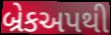
બ્રેકઅપથી